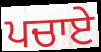
ਪਚਾਏ